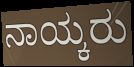
ನಾಯ್ಕರು